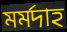
মর্মদাহ